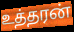
உத்தரன்